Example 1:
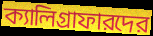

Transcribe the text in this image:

ক্যালিগ্রাফারদের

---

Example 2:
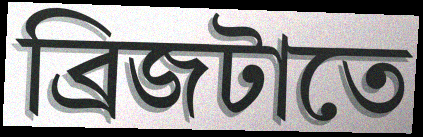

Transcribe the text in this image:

ব্রিজটাতে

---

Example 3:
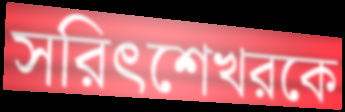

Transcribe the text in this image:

সরিৎশেখরকে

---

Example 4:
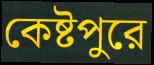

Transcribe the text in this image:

কেষ্টপুরে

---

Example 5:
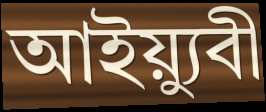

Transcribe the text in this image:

আইয়্যুবী